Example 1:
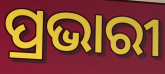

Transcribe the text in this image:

ପ୍ରଭାରୀ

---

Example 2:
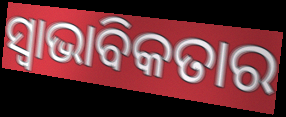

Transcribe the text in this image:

ସ୍ଵାଭାବିକତାର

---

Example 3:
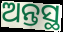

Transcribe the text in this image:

ଅନ୍ତସ୍ଥ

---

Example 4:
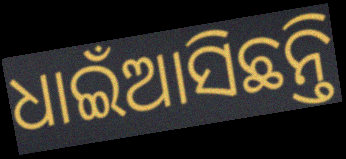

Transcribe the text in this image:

ଧାଇଁଆସିଛନ୍ତି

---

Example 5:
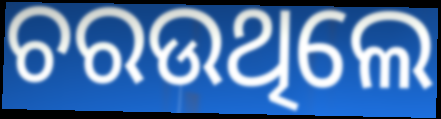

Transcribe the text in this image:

ଚରଉଥିଲେ